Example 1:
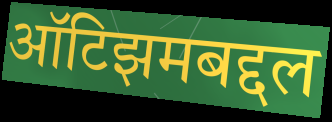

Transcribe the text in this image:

ऑटिझमबद्दल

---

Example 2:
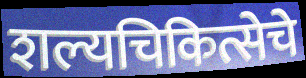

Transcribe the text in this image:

शल्यचिकित्सेचे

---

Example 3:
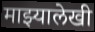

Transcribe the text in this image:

माझ्यालेखी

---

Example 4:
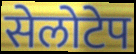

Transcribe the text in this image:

सेलोटेप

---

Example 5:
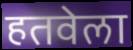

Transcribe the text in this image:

हतवेला